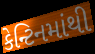
કેન્ટિનમાંથી